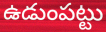
ఉడుంపట్టు